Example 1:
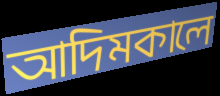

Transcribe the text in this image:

আদিমকালে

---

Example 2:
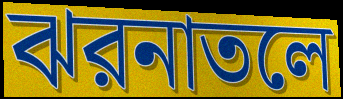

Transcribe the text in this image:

ঝরনাতলে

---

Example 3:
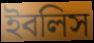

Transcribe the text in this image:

ইবলিস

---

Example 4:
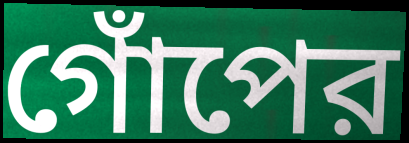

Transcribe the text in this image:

গোঁপের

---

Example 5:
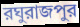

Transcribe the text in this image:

রঘুরাজপুর